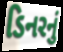
ડિનરનું